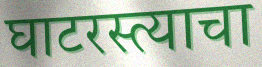
घाटरस्त्याचा